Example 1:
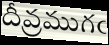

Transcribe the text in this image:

దీవ్రముగఁ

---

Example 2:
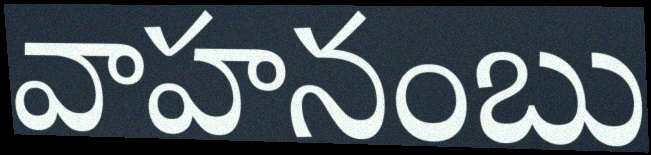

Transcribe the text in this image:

వాహనంబు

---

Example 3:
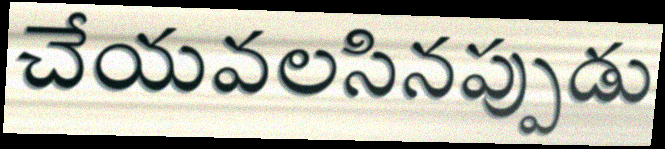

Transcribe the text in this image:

చేయవలసినప్పుడు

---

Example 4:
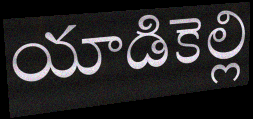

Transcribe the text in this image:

యాడికెల్లి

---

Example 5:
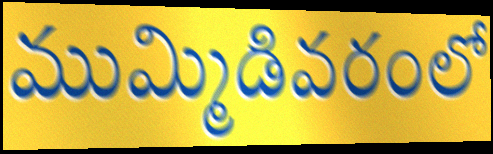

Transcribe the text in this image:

ముమ్మిడివరంలో